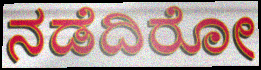
ನಡೆದಿರೋ